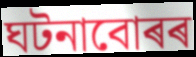
ঘটনাবোৰৰ